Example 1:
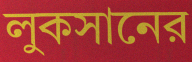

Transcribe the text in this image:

লুকসানের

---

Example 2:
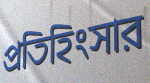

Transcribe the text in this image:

প্রতিহিংসার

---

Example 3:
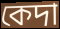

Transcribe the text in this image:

কেদা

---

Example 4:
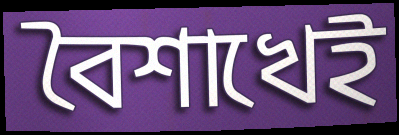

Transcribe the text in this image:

বৈশাখেই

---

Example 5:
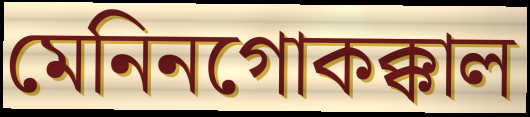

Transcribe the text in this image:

মেনিনগোকক্কাল